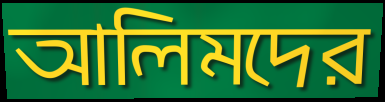
আলিমদের